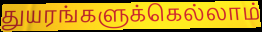
துயரங்களுக்கெல்லாம்